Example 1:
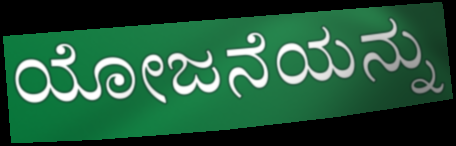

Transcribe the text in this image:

ಯೋಜನೆಯನ್ನು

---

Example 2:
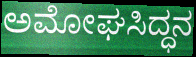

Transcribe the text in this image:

ಅಮೋಘಸಿದ್ಧನ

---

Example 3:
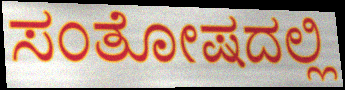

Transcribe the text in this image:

ಸಂತೋಷದಲ್ಲಿ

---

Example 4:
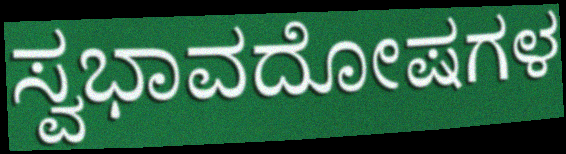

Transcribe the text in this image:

ಸ್ವಭಾವದೋಷಗಳ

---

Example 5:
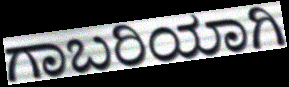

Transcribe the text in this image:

ಗಾಬರಿಯಾಗಿ